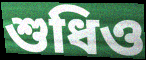
শুধিও